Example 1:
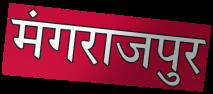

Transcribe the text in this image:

मंगराजपुर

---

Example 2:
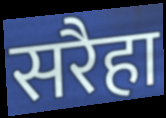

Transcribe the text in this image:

सरैहा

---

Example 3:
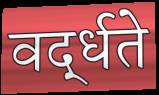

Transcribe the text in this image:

वर्द्धते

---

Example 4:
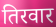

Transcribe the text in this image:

तिरवार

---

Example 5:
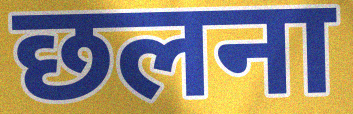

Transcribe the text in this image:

छलना